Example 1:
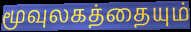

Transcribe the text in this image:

மூவுலகத்தையும்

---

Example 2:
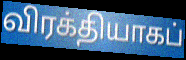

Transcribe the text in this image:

விரக்தியாகப்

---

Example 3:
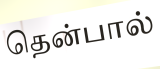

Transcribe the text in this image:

தென்பால்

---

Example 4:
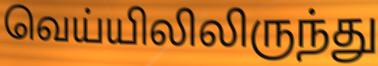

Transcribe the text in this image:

வெய்யிலிலிருந்து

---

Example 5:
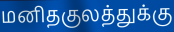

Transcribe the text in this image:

மனிதகுலத்துக்கு